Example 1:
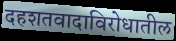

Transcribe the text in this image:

दहशतवादाविरोधातील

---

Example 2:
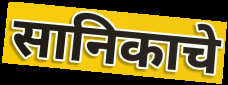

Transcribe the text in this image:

सानिकाचे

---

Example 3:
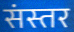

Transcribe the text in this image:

संस्तर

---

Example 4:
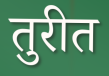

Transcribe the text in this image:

तुरीत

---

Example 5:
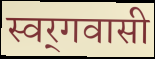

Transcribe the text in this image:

स्वर्गवासी